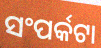
ସଂପର୍କଟା